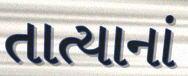
તાત્યાનાં